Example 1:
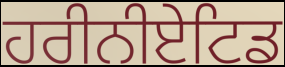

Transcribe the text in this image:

ਹਰੀਨੀਏਟਿਡ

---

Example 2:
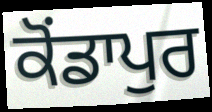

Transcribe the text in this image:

ਕੋਂਡਾਪੁਰ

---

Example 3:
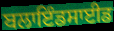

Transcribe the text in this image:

ਬਲਾਇੰਡਸਾਈਡ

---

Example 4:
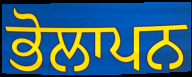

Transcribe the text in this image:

ਭੋਲਾਪਨ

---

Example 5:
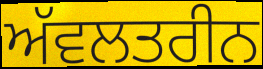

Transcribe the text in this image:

ਅੱਵਲਤਰੀਨ